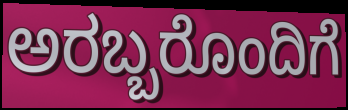
ಅರಬ್ಬರೊಂದಿಗೆ